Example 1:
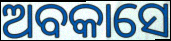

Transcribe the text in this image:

ଅବକାସେ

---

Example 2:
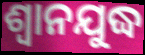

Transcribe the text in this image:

ଶ୍ଵାନଯୁଦ୍ଧ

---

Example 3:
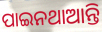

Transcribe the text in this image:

ପାଇନଥାଆନ୍ତି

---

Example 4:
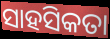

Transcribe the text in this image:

ସାହସିକତା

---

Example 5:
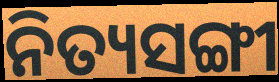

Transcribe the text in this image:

ନିତ୍ୟସଙ୍ଗୀ